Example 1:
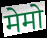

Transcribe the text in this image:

मेमो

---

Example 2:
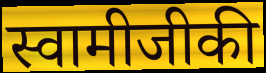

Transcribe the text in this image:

स्वामीजीकी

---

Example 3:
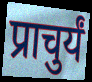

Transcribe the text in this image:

प्राचुर्यं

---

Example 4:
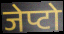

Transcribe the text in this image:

जेप्टो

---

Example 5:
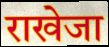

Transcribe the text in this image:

राखेजा